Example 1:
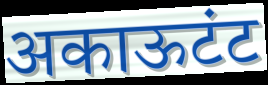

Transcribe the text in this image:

अकाऊटंट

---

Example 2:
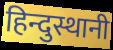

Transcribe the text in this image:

हिन्दुस्थानी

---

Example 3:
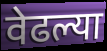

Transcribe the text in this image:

वेढल्या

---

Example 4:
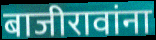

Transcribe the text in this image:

बाजीरावांना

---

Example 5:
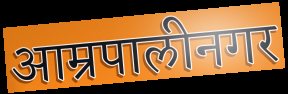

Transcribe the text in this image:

आम्रपालीनगर